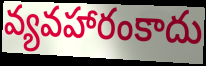
వ్యవహారంకాదు